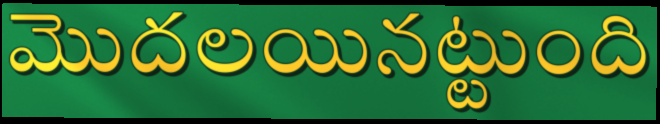
మొదలయినట్టుంది